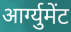
आर्ग्युमेंट